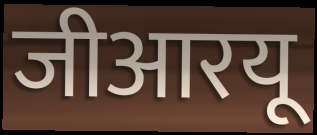
जीआरयू